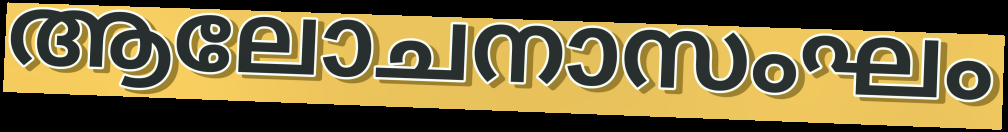
ആലോചനാസംഘം